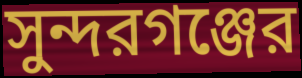
সুন্দরগঞ্জের